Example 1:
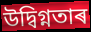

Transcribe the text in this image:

উদ্বিগ্নতাৰ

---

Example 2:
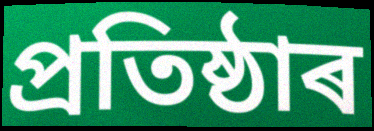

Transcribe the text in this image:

প্ৰতিষ্ঠাৰ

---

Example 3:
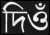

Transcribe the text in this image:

দিওঁ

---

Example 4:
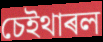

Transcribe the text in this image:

চেইথাৰল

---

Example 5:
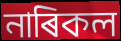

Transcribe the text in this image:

নাৰিকল